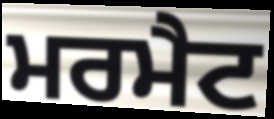
ਮਰਮੈਟ